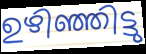
ഉഴിഞ്ഞിട്ടു